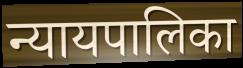
न्यायपालिका